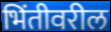
भिंतीवरील